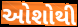
ઓશોથી